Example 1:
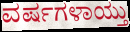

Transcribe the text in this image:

ವರ್ಷಗಳಾಯ್ತು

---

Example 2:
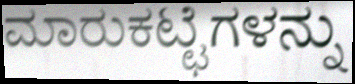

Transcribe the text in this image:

ಮಾರುಕಟ್ಟೆಗಳನ್ನು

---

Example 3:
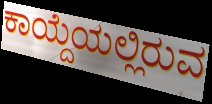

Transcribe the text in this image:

ಕಾಯ್ದೆಯಲ್ಲಿರುವ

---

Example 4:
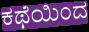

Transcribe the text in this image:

ಕಥೆಯಿಂದ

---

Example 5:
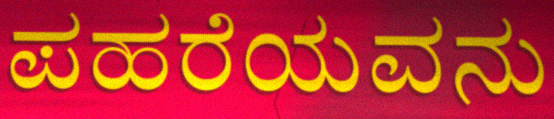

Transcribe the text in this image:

ಪಹರೆಯವನು